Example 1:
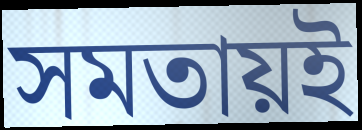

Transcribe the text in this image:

সমতায়ই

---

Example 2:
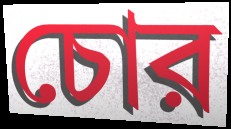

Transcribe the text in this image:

চোর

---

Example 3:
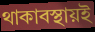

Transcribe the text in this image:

থাকাবস্থায়ই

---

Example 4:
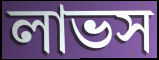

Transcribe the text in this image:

লাভস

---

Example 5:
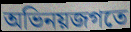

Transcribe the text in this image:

অভিনয়জগতে